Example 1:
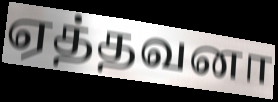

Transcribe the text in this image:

ஏத்தவனா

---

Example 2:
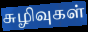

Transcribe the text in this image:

சுழிவுகள்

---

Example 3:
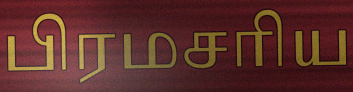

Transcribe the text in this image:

பிரமசரிய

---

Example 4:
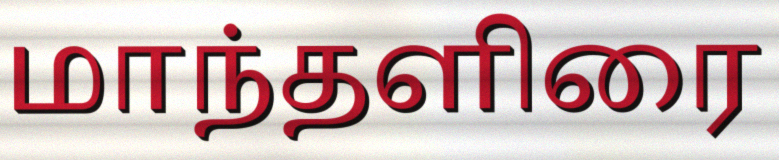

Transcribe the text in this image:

மாந்தளிரை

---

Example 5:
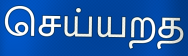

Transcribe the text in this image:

செய்யறத